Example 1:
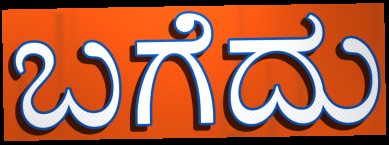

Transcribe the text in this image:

ಬಗೆದು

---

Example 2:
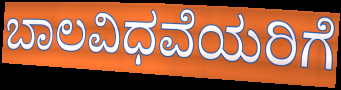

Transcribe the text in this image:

ಬಾಲವಿಧವೆಯರಿಗೆ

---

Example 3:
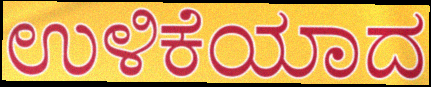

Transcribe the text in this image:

ಉಳಿಕೆಯಾದ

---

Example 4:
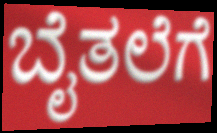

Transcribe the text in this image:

ಬೈತಲೆಗೆ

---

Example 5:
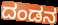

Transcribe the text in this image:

ದಂಡನ